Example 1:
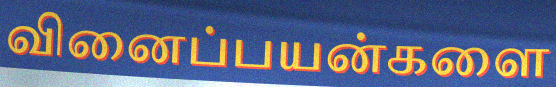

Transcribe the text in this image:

வினைப்பயன்களை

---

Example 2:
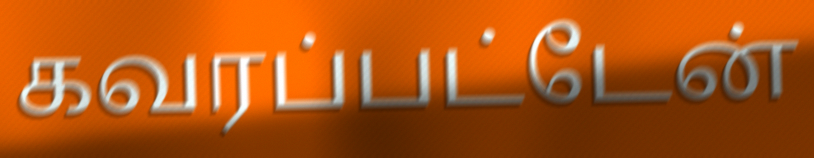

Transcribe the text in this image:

கவரப்பட்டேன்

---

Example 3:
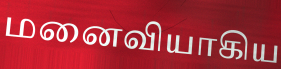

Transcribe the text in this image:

மனைவியாகிய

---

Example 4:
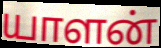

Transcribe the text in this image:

யாளன்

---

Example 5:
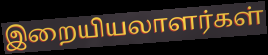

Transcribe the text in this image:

இறையியலாளர்கள்